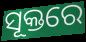
ସୂକ୍ତରେ